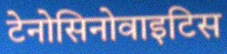
टेनोसिनोवाइटिस